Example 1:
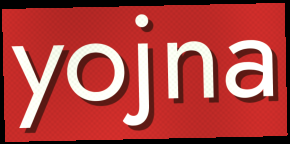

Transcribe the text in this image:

yojna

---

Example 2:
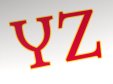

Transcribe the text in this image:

YZ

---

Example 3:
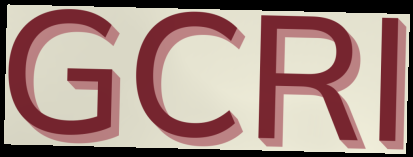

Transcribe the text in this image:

GCRI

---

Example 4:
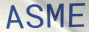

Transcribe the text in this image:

ASME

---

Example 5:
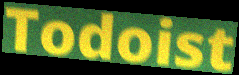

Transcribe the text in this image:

Todoist